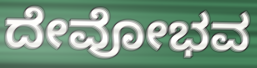
ದೇವೋಭವ